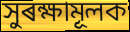
সুৰক্ষামূলক